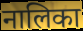
नालिका